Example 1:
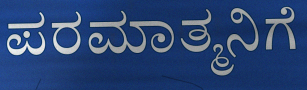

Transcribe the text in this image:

ಪರಮಾತ್ಮನಿಗೆ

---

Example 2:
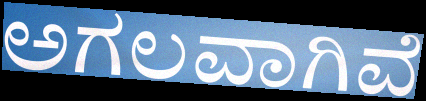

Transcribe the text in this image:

ಅಗಲವಾಗಿವೆ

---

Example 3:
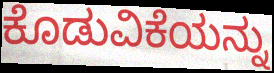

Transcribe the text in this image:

ಕೊಡುವಿಕೆಯನ್ನು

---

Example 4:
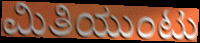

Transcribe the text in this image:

ಮಿತಿಯುಂಟು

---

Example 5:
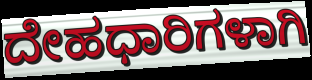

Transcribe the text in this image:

ದೇಹಧಾರಿಗಳಾಗಿ